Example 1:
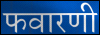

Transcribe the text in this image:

फवारणी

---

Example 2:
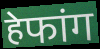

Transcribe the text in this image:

हेफांग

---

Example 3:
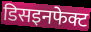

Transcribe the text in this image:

डिसइनफेक्ट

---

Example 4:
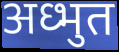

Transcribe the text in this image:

अध्भुत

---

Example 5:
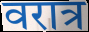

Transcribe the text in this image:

वरात्र